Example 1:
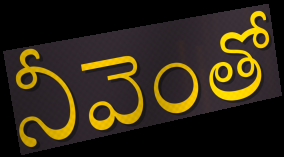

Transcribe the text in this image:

నీవెంతో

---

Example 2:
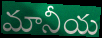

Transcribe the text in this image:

మానీయ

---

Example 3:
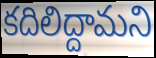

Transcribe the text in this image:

కదిలిద్దామని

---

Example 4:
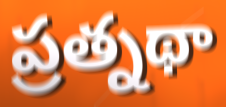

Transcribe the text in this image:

ప్రత్నథా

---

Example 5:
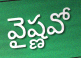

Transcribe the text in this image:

వైష్ణవో